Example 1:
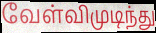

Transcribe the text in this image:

வேள்விமுடிந்து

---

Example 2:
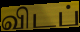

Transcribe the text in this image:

விடப்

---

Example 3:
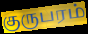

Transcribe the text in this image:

குருபரம்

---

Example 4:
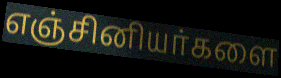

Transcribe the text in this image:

எஞ்சினியர்களை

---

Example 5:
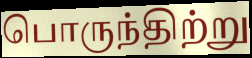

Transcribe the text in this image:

பொருந்திற்று